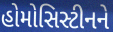
હોમોસિસ્ટીનને